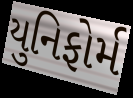
યુનિફોર્મ